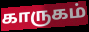
காருகம்